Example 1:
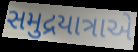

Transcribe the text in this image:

સમુદ્રયાત્રાએ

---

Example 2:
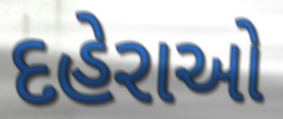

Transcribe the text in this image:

દહેરાઓ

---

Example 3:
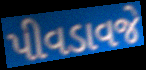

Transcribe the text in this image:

પીવડાવજે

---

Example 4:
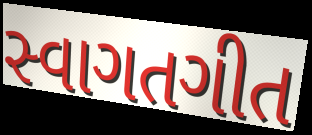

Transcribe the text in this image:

સ્વાગતગીત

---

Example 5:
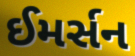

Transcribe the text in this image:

ઈમર્સન